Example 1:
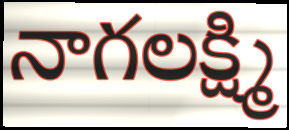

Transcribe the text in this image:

నాగలక్ష్మి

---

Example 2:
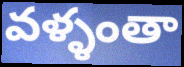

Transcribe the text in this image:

వళ్ళంతా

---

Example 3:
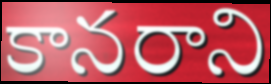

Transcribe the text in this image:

కానరాని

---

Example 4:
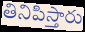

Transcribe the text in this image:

తినిపిస్తారు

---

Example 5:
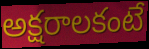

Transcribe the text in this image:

అక్షరాలకంటే